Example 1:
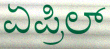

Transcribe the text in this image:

ಏಪ್ರಿಲ್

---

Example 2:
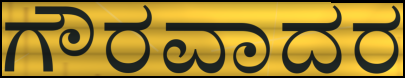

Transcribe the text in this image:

ಗೌರವಾದರ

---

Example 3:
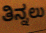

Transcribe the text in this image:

ತಿನ್ನಲು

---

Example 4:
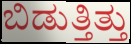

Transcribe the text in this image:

ಬಿಡುತ್ತಿತ್ತು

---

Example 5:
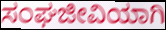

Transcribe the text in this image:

ಸಂಘಜೀವಿಯಾಗಿ